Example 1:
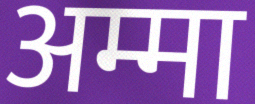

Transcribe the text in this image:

अम्‍मा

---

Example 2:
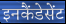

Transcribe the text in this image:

इनकैंडेसेंट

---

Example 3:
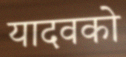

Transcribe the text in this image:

यादवको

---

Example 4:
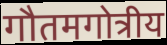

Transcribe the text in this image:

गौतमगोत्रीय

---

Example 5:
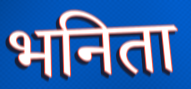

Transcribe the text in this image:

भनिता